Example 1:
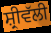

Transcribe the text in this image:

ਸ਼੍ਰੀਵੱਲੀ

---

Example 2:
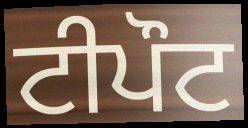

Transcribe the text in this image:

ਟੀਪੌਟ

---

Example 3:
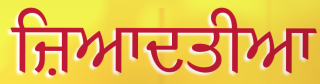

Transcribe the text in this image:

ਜ਼ਿਆਦਤੀਆ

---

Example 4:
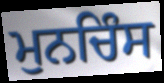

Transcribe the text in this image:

ਮੁਨਚਿੰਸ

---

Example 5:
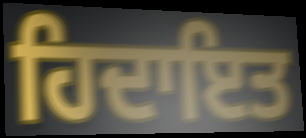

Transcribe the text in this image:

ਹਿਦਾਇਤ